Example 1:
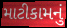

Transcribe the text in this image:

માટીકામનું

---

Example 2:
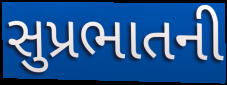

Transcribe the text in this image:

સુપ્રભાતની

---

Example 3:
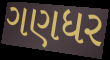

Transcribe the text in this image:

ગણધર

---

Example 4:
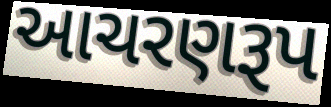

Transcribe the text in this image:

આચરણરૂપ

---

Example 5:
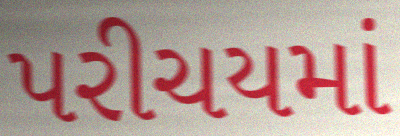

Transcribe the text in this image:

પરીચયમાં